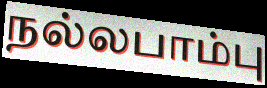
நல்லபாம்பு